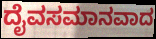
ದೈವಸಮಾನವಾದ